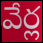
వేర్ల